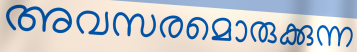
അവസരമൊരുക്കുന്ന